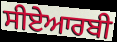
ਸੀਏਆਰਬੀ